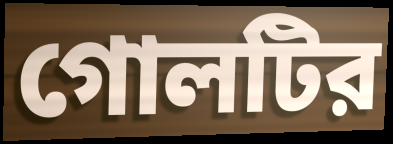
গোলটির